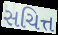
સચિત્ત